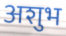
अशुभ